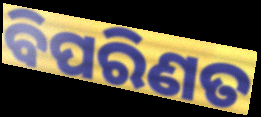
ବିପରିଣତ